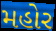
મહોર